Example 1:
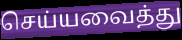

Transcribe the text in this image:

செய்யவைத்து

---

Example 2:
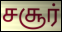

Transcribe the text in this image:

சசூர்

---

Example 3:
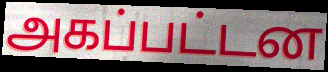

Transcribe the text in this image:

அகப்பட்டன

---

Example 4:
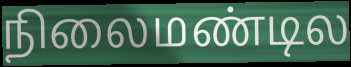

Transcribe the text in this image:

நிலைமண்டில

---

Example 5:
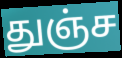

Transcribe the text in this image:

துஞ்ச